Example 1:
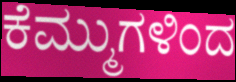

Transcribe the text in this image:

ಕೆಮ್ಮುಗಳಿಂದ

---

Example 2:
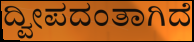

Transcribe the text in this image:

ದ್ವೀಪದಂತಾಗಿದೆ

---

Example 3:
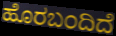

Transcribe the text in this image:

ಹೊರಬಂದಿದೆ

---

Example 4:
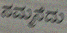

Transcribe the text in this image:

ನಮ್ಮನೆದು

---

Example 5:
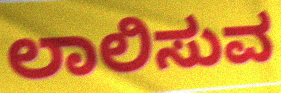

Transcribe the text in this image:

ಲಾಲಿಸುವ